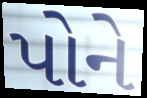
પોને